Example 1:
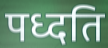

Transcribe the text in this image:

पध्दति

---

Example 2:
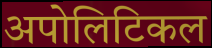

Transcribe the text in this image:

अपोलिटिकल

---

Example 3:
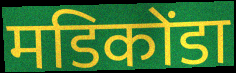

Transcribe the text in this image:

मडिकोंडा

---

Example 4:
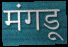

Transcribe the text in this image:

मंगडू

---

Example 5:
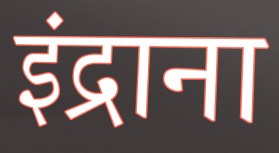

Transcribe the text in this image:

इंद्राना